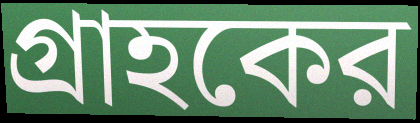
গ্রাহকের